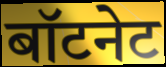
बॉटनेट